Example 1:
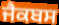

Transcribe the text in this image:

ਜੈਕਬਸ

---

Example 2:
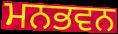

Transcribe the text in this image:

ਮਨਭਵਨ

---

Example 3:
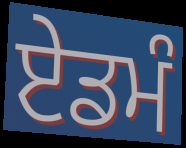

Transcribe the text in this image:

ਏਡਮੰ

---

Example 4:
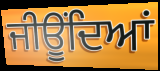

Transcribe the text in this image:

ਜੀਊਂਦਿਆਂ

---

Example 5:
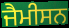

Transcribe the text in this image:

ਜੈਮੀਸਨ